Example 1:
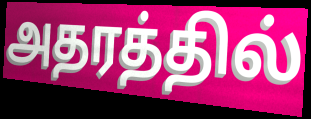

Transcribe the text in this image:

அதரத்தில்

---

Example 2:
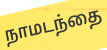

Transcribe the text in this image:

நாமடந்தை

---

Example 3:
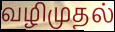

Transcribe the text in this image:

வழிமுதல்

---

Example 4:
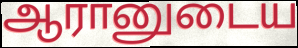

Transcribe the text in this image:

ஆரானுடைய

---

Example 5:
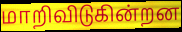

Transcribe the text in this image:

மாறிவிடுகின்றன